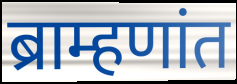
ब्राम्हणांत